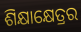
ଶିକ୍ଷାକ୍ଷେତ୍ରର